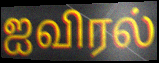
ஐவிரல்